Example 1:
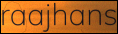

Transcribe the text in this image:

raajhans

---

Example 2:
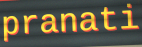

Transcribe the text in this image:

pranati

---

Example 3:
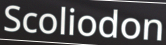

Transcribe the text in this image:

Scoliodon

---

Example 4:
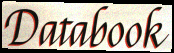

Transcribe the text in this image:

Databook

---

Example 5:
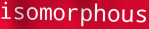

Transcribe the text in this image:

isomorphous